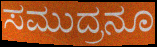
ಸಮುದ್ರನೂ